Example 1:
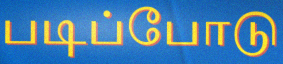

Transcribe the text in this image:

படிப்போடு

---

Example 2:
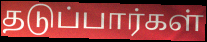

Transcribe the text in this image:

தடுப்பார்கள்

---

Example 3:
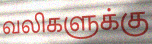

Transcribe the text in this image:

வலிகளுக்கு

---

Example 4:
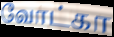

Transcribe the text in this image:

வோட்கா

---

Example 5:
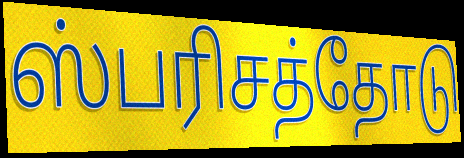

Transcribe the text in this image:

ஸ்பரிசத்தோடு